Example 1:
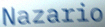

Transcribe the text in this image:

Nazario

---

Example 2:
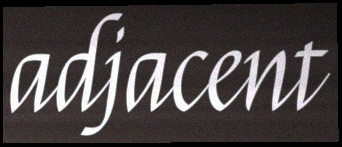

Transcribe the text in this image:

adjacent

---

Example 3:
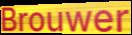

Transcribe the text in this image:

Brouwer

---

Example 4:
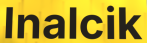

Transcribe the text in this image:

Inalcik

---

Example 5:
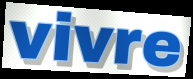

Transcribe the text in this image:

vivre